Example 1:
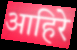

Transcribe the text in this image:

आहिरे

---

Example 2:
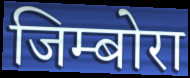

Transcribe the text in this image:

जिम्बोरा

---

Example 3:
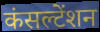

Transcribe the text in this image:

कंसल्टेंशन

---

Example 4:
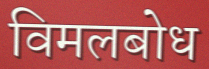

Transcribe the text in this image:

विमलबोध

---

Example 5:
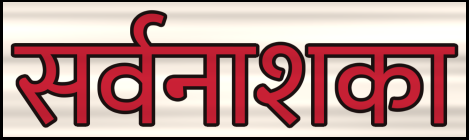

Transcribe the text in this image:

सर्वनाशका